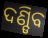
ଦଣ୍ଡିବ